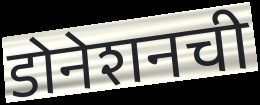
डोनेशनची